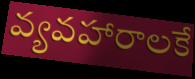
వ్యవహారాలకే